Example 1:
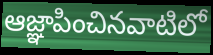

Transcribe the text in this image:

ఆజ్ఞాపించినవాటిలో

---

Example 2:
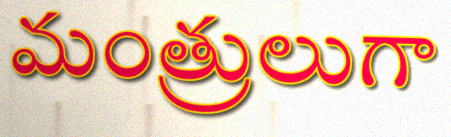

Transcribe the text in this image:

మంత్రులుగా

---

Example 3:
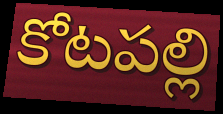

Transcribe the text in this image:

కోటపల్లి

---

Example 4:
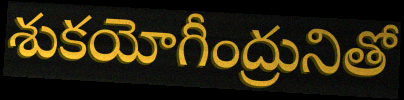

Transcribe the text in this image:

శుకయోగీంద్రునితో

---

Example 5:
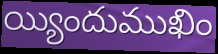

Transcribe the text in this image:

య్యిందుముఖిం